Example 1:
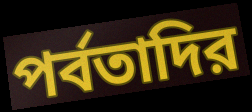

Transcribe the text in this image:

পর্বতাদির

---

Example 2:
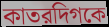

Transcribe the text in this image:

কাতরদিগকে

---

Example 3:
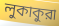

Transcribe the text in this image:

লুকাকুরা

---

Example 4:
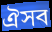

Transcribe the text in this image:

ঐসব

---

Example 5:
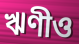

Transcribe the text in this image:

ঋণীও